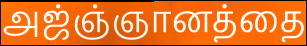
அஜ்ஞ்ஞானத்தை